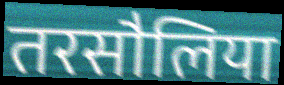
तरसौलिया